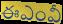
ఈఎంవీ